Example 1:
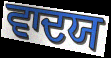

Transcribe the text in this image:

ਵਾਦਯ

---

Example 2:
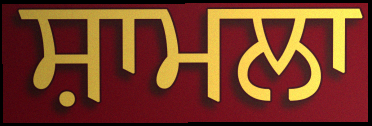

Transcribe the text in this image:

ਸ਼ਾਮਲਾ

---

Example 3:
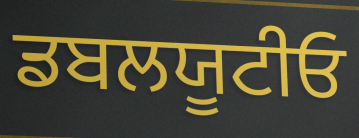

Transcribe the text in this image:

ਡਬਲਯੂਟੀਓ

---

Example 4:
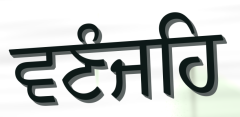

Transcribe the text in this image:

ਵਣੰਜਹਿ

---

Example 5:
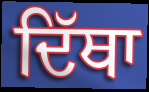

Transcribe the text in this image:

ਦਿੱਥਾ